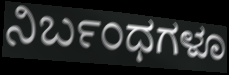
ನಿರ್ಬಂಧಗಳೂ